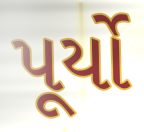
પૂર્યો